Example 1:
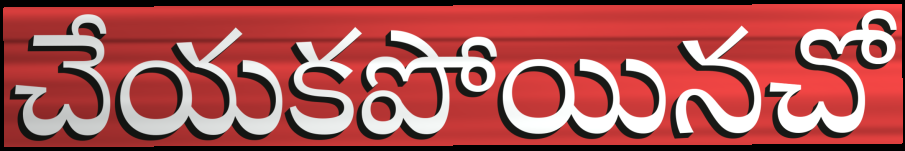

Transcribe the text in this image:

చేయకపోయినచో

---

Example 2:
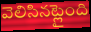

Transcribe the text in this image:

వెలిసినట్లైంది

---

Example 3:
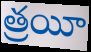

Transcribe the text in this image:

త్రయీ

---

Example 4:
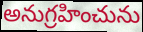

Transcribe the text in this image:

అనుగ్రహించును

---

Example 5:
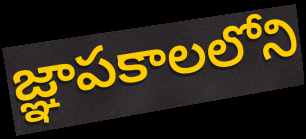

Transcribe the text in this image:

జ్ఞాపకాలలోని